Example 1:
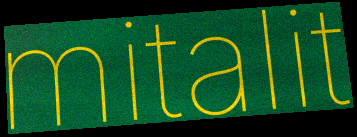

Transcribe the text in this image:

mitalit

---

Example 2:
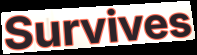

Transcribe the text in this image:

Survives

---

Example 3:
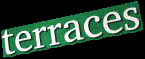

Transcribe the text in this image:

terraces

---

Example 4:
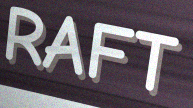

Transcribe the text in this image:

RAFT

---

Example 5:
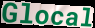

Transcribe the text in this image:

Glocal